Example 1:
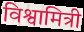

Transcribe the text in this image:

विश्वामित्री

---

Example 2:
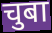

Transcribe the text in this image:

चुबा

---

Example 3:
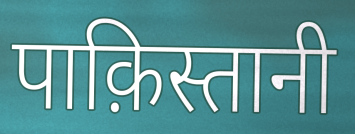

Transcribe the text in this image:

पाक़िस्तानी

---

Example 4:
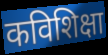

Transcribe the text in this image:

कविशिक्षा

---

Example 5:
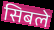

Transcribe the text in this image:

सिबले